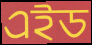
এইড